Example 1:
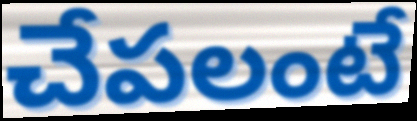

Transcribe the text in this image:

చేపలంటే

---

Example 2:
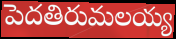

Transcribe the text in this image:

పెదతిరుమలయ్య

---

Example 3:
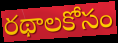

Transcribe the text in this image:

రథాలకోసం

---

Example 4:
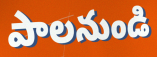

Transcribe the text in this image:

పాలనుండి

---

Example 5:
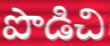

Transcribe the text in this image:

పొడిచి